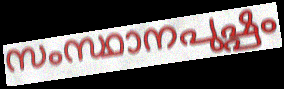
സംസ്ഥാനപുഷ്പം